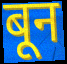
बून